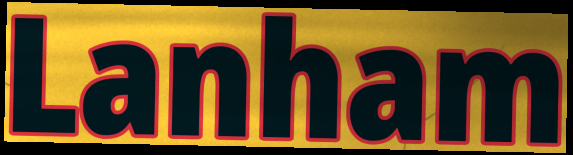
Lanham